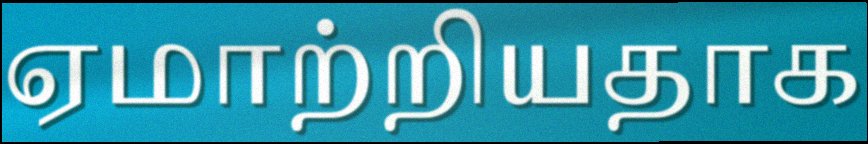
ஏமாற்றியதாக